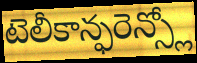
టెలీకాన్ఫరెన్స్లో